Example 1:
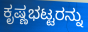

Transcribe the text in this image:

ಕೃಷ್ಣಭಟ್ಟರನ್ನು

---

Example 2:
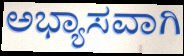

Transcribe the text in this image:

ಅಭ್ಯಾಸವಾಗಿ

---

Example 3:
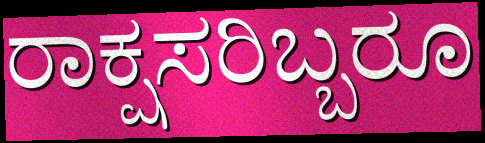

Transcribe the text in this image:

ರಾಕ್ಷಸರಿಬ್ಬರೂ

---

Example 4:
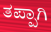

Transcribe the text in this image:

ತಪ್ಪಾಗಿ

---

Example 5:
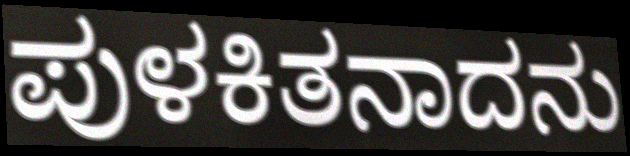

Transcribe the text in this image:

ಪುಳಕಿತನಾದನು